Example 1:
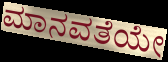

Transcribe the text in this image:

ಮಾನವತೆಯೇ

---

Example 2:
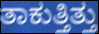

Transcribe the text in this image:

ತಾಕುತ್ತಿತ್ತು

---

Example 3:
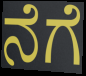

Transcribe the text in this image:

ನೆಗೆ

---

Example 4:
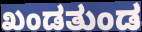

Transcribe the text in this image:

ಖಂಡತುಂಡ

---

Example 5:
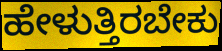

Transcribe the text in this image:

ಹೇಳುತ್ತಿರಬೇಕು